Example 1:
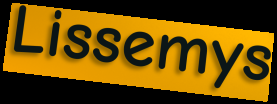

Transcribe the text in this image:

Lissemys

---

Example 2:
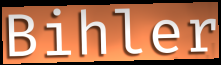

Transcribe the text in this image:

Bihler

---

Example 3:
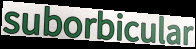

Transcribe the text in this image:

suborbicular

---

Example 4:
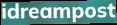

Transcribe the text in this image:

idreampost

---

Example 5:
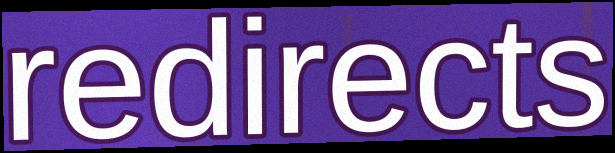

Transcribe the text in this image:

redirects